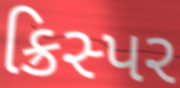
ક્રિસ્પર